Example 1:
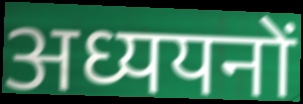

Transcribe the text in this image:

अध्ययनों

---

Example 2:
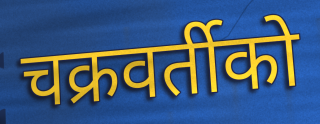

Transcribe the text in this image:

चक्रवर्तीको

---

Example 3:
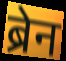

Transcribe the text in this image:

ब्रेन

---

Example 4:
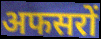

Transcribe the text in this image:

अफसरों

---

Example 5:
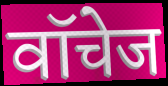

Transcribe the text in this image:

वॉचेज